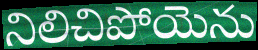
నిలిచిపోయెను